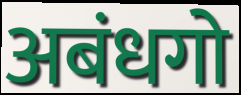
अबंधगो